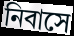
নিবাসে